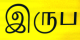
இருப